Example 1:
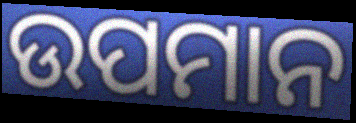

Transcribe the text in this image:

ଉପମାନ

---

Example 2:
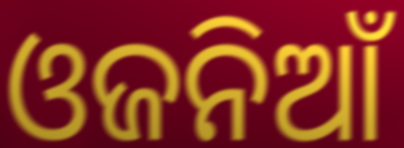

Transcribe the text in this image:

ଓଜନିଆଁ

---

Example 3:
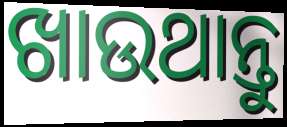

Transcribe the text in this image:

ଖାଉଥାନ୍ତୁ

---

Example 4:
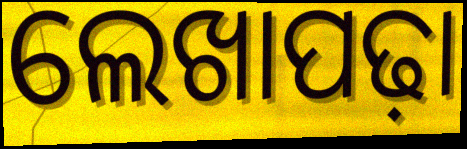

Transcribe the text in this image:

ଲେଖାପଢ଼ା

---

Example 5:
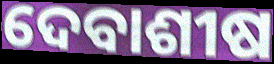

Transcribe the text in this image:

ଦେବାଶୀଷ